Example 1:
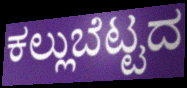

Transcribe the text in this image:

ಕಲ್ಲುಬೆಟ್ಟದ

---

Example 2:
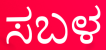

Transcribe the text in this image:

ಸಬಳ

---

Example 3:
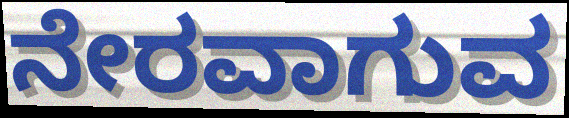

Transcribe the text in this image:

ನೇರವಾಗುವ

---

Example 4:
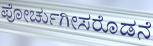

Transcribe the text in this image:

ಪೋರ್ಚುಗೀಸರೊಡನೆ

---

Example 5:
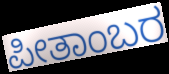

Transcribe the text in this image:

ಪೀತಾಂಬರ